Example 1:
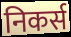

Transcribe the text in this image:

निकर्स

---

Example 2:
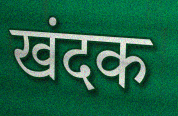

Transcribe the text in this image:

खंदक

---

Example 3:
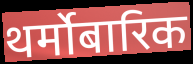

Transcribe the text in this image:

थर्मोबारिक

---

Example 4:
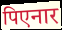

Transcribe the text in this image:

पिएनार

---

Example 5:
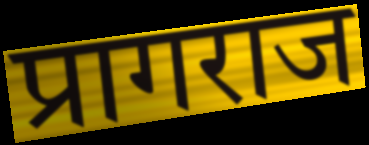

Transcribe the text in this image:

प्रागराज